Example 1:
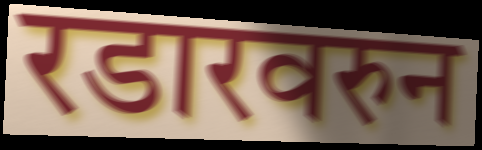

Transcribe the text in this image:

रडारवरुन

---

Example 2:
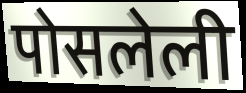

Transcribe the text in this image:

पोसलेली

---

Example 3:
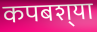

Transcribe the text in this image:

कपबश्या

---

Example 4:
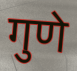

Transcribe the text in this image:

गुणे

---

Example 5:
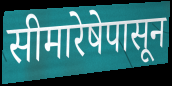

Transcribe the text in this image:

सीमारेषेपासून